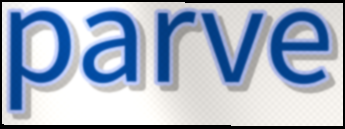
parve